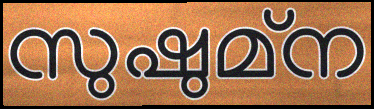
സുഷുമ്ന